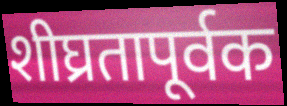
शीघ्रतापूर्वक